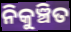
ନିକୁଞ୍ଚିତ